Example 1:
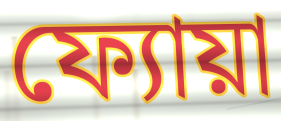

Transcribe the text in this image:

ফ্যোয়া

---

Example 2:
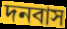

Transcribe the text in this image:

দনবাস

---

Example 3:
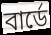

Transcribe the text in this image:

বার্ডে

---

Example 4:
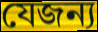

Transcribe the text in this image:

যেজন্য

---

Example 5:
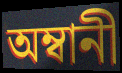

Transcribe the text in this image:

অম্বানী